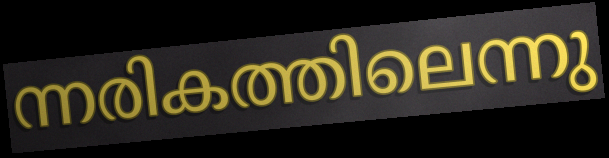
ന്നരികത്തിലെന്നു